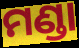
ମଣ୍ଡା